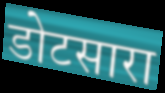
डोटसारा